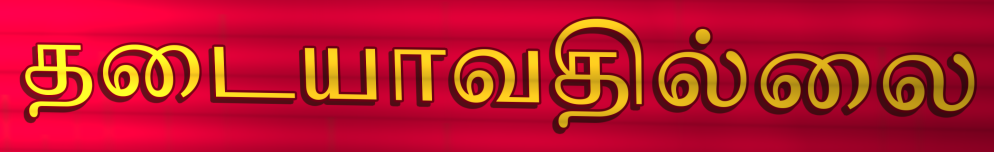
தடையாவதில்லை